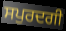
ਸਪੁਰਦਗੀ